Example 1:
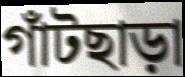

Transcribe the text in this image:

গাঁটছাড়া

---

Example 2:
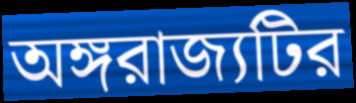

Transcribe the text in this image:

অঙ্গরাজ্যটির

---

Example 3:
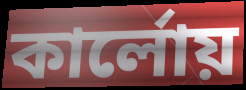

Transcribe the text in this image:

কার্লোয়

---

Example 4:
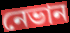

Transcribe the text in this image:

নেভান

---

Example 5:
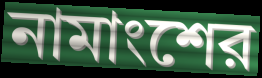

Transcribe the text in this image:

নামাংশের